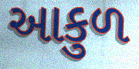
આકુળ